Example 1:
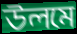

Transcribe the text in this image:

উলমে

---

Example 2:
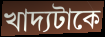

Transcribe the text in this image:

খাদ্যটাকে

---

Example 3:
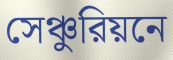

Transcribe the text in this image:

সেঞ্চুরিয়নে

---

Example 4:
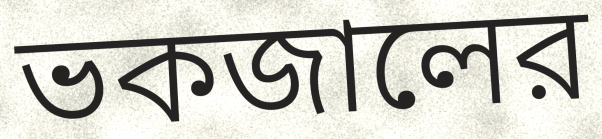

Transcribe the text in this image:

ভকজালের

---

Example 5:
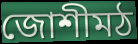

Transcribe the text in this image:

জোশীমঠ